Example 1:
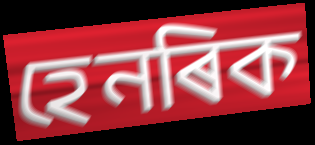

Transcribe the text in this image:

হেনৰিক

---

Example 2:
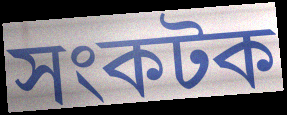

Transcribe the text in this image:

সংকটক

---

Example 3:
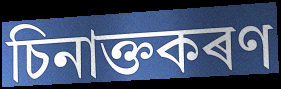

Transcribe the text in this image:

চিনাক্তকৰণ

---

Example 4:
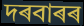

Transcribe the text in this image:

দৰবাৰৰ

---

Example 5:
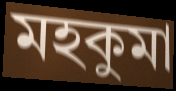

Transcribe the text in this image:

মহকুমা